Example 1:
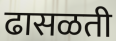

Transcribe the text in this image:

ढासळती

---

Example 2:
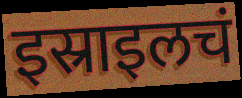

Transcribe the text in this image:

इस्राइलचं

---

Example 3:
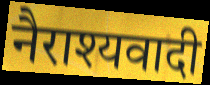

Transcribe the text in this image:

नैराश्यवादी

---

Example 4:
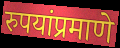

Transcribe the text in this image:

रुपयांप्रमाणे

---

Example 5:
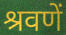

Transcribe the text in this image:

श्रवणें